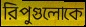
রিপুগুলোকে